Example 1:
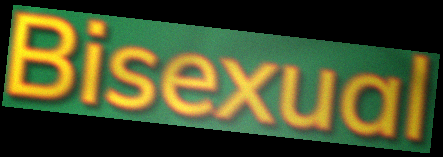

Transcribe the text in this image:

Bisexual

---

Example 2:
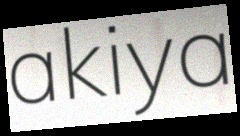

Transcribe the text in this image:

akiya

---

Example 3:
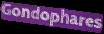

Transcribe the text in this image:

Gondophares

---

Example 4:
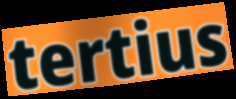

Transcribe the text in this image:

tertius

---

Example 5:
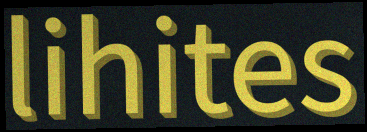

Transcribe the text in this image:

lihites